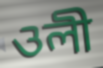
ওলী